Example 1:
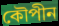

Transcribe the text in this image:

কৌপীন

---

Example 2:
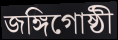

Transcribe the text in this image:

জঙ্গিগোষ্ঠী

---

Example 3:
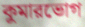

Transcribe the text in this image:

কুমারভোগ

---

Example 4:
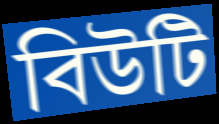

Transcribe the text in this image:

বিউটি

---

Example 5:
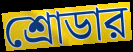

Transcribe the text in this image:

শ্রোডার